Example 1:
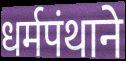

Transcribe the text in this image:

धर्मपंथाने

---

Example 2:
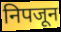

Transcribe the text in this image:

निपजून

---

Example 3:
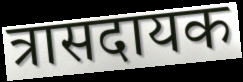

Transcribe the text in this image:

त्रासदायक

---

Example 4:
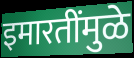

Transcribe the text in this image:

इमारतींमुळे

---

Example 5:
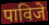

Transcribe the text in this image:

पाविजे